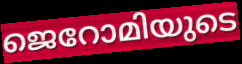
ജെറോമിയുടെ